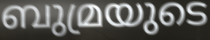
ബുമ്രയുടെ